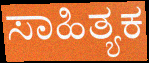
ಸಾಹಿತ್ಯಕ